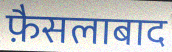
फ़ैसलाबाद